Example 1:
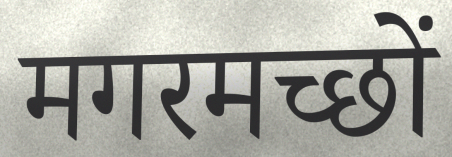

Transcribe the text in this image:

मगरमच्छों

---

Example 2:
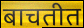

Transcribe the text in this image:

बाचतीत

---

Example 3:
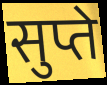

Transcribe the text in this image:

सुप्ते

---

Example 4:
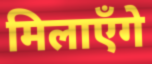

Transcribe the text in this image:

मिलाएँगे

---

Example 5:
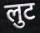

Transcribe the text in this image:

लुट